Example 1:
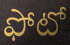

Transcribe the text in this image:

ఫోటో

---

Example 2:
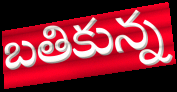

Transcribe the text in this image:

బతికున్న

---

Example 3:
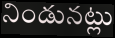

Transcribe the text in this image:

నిండునట్లు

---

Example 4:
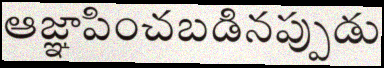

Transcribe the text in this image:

ఆజ్ఞాపించబడినప్పుడు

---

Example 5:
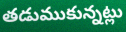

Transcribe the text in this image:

తడుముకున్నట్లు